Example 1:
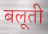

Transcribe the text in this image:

बलूती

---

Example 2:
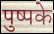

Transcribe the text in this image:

पुष्पके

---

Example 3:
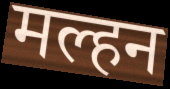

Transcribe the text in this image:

मल्हन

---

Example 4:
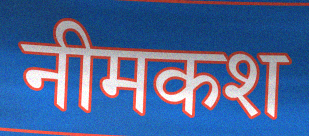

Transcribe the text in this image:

नीमकश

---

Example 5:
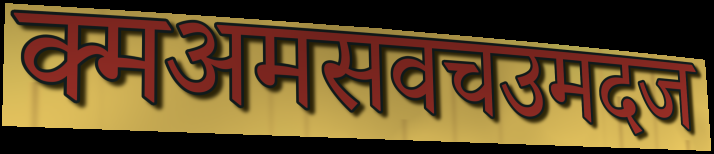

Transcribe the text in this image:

क्मअमसवचउमदज